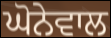
ਘੋਨੇਵਾਲ